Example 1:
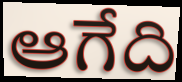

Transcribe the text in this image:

ఆగేది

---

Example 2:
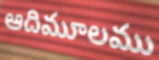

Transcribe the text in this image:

ఆదిమూలము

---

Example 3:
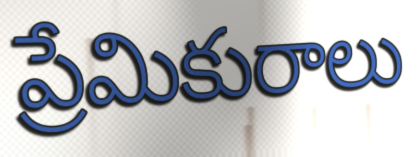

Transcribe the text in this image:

ప్రేమికురాలు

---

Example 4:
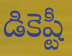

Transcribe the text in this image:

డికెష్టీ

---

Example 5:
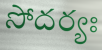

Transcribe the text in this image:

సోదర్యః